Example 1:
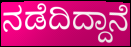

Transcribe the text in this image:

ನಡೆದಿದ್ದಾನೆ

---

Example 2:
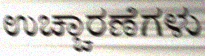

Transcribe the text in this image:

ಉಚ್ಚಾರಣೆಗಳು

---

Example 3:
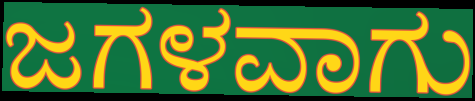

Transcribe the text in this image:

ಜಗಳವಾಗು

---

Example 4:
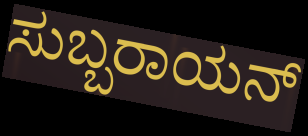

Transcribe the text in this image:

ಸುಬ್ಬರಾಯನ್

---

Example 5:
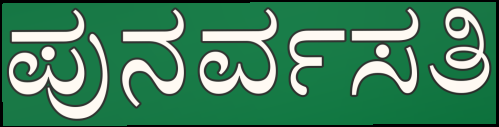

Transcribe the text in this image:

ಪುನರ್ವಸತಿ